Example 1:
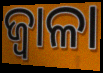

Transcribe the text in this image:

ଜ୍ୱାଳା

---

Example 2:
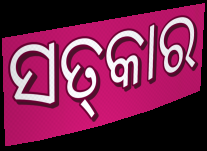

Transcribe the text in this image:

ସତ୍‌କାର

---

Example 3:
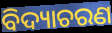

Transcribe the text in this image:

ବିଦ୍ୟାଚରଣ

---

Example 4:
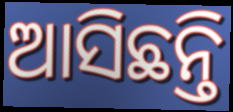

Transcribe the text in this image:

ଆସିଛନ୍ତି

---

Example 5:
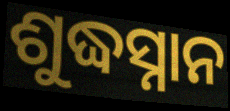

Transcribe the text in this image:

ଶୁଦ୍ଧସ୍ନାନ